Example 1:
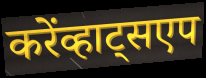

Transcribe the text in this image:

करेंव्हाट्सएप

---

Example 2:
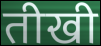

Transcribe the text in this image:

तीखी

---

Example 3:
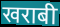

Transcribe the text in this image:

खराबी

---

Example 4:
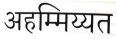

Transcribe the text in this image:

अहम्मिय्यत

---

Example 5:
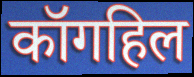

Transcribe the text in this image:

कॉगहिल